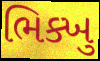
ભિક્ખુ